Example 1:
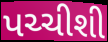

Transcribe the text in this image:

પચ્ચીશી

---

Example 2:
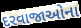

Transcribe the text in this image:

દરવાજાઓના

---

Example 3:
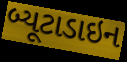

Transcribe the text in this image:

બ્યૂટાડાઇન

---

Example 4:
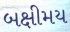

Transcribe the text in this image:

બક્ષીમય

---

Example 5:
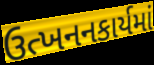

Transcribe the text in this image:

ઉત્ખનનકાર્યમાં